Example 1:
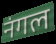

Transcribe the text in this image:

नंगल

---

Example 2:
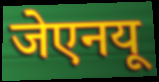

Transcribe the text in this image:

जेएनयू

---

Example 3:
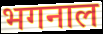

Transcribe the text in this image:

भगनाल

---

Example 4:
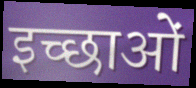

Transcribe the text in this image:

इच्छाओं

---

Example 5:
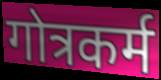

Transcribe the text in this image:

गोत्रकर्म